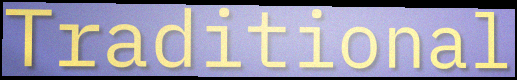
Traditional